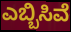
ಎಬ್ಬಿಸಿವೆ